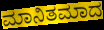
ಮಾನಿತಮಾದ